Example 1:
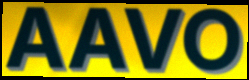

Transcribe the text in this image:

AAVO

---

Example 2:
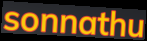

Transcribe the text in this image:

sonnathu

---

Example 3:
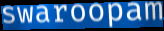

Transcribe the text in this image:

swaroopam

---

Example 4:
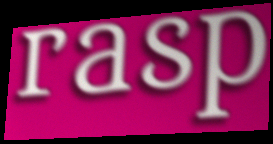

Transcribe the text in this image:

rasp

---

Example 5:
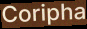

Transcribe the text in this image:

Coripha